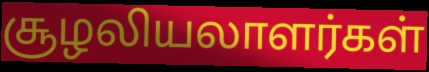
சூழலியலாளர்கள்